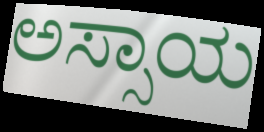
ಅಸ್ಸಾಯ